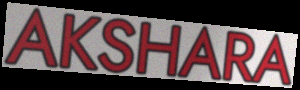
AKSHARA